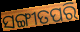
ସଙ୍ଗୀତପରି